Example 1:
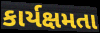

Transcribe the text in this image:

કાર્યક્ષમતા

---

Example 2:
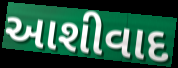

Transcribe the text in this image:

આશીવાદ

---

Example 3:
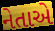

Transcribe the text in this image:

નેતાએ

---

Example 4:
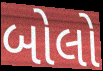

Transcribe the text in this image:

બોલો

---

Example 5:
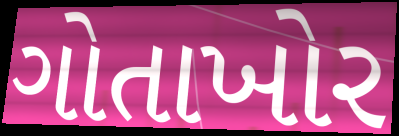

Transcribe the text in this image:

ગોતાખોર